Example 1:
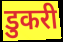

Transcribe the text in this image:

डुकरी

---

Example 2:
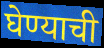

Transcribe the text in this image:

घेण्याची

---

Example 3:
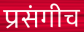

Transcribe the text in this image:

प्रसंगीच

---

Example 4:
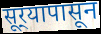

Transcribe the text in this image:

सूर्यापासून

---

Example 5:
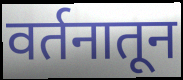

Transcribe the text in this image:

वर्तनातून